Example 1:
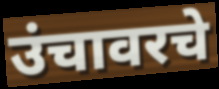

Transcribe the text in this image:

उंचावरचे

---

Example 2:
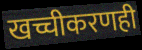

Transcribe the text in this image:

खच्चीकरणही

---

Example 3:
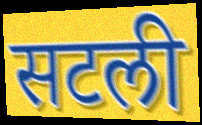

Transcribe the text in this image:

सटली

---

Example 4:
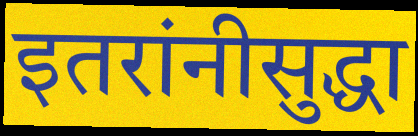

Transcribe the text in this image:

इतरांनीसुद्धा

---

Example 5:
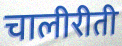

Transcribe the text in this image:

चालीरीती